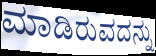
ಮಾಡಿರುವದನ್ನು